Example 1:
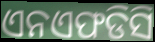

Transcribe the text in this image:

ଏନଏଫଡିସି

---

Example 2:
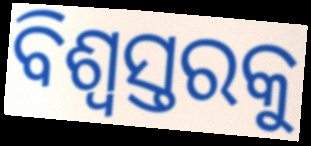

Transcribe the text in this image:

ବିଶ୍ୱସ୍ତରକୁ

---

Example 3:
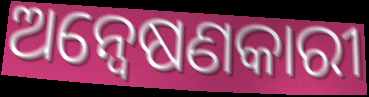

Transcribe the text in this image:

ଅନ୍ୱେଷଣକାରୀ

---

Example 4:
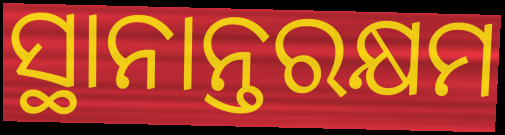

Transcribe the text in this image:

ସ୍ଥାନାନ୍ତରକ୍ଷମ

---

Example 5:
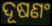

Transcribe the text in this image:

ଦୂଷଣଂ